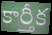
కార్తీక